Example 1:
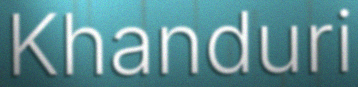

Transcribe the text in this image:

Khanduri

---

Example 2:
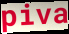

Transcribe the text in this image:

piva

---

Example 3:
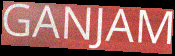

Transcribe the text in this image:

GANJAM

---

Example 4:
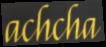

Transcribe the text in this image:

achcha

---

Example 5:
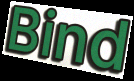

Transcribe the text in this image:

Bind